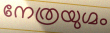
നേത്രയുഗ്മം